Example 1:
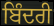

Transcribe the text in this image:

ਬਿੰਦਰੀ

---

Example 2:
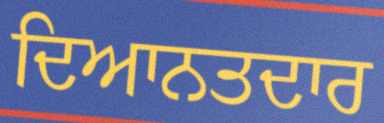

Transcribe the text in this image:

ਦਿਆਨਤਦਾਰ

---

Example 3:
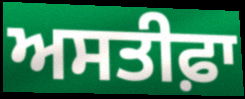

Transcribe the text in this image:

ਅਸਤੀਫ਼ਾ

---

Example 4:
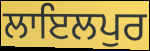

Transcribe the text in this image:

ਲਾਇਲਪੁਰ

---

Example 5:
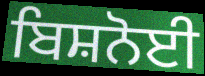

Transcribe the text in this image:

ਬਿਸ਼ਨੋਈ